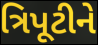
ત્રિપૂટીને